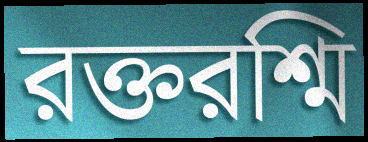
রক্তরশ্মি